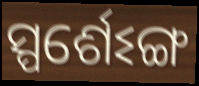
ସ୍ପର୍ଶେଽଙ୍ଗ